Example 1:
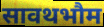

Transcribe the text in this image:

सावथभौम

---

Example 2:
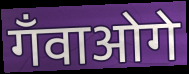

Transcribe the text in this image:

गँवाओगे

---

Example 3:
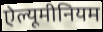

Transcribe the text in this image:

ऐल्यूमीनियम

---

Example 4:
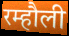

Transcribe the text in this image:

रम्हौली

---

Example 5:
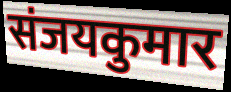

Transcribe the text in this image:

संजयकुमार